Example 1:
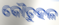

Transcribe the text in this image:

କୌତୁହଳ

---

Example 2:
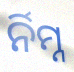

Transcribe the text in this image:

ର୍ନିମ୍ନ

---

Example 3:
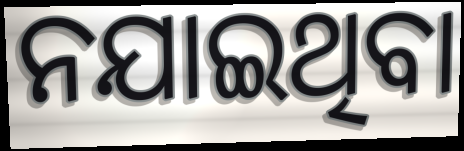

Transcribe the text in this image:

ନଯାଇଥିବା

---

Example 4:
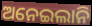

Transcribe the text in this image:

ଅନେଇଲାନି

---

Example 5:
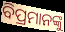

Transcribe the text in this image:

ବିପ୍ରମାନଙ୍କୁ